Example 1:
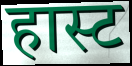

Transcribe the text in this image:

हास्ट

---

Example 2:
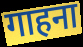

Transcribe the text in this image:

गाहना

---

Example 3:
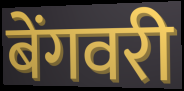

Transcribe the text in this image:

बेंगवरी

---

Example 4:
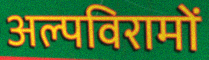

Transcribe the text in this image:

अल्पविरामों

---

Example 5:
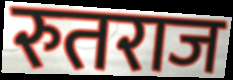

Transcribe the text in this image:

रुतराज